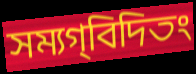
সম্যগ্‌বিদিতং